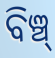
ବିଞ୍ଚ୍